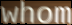
whom